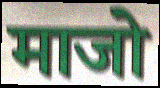
माजो